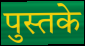
पुस्‍तके